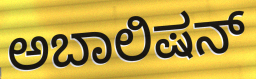
ಅಬಾಲಿಷನ್